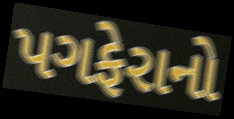
પગફેરાનો